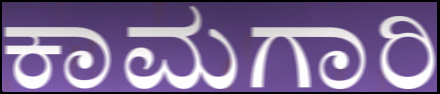
ಕಾಮಗಾರಿ